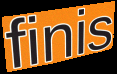
finis